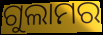
ଗୁଲାମର